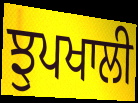
ਝੁਪਖਾਲੀ